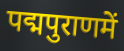
पद्मपुराणमें